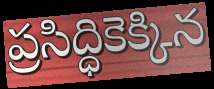
ప్రసిద్ధికెక్కిన